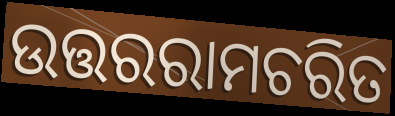
ଉତ୍ତରରାମଚରିତ